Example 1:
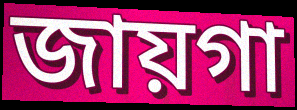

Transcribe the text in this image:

জায়গা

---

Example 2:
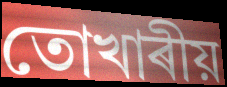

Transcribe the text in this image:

তোখাৰীয়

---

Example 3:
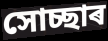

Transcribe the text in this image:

সোচ্ছাৰ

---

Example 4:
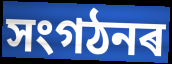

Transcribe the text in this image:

সংগঠনৰ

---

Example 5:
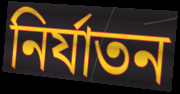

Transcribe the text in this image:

নিৰ্যাতন